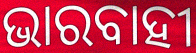
ଭାରବାହୀ